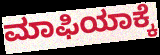
ಮಾಫಿಯಾಕ್ಕೆ